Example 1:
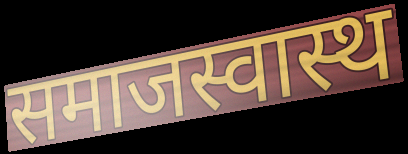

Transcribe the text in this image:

समाजस्वास्थ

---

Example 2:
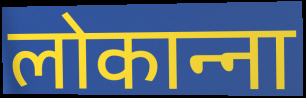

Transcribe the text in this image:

लोकान्ना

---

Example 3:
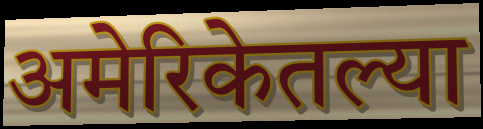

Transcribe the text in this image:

अमेरिकेतल्या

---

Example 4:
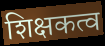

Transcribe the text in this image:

शिक्षकत्व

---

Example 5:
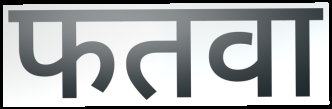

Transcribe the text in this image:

फतवा